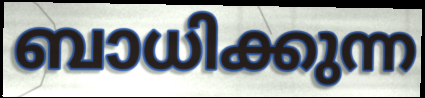
ബാധിക്കുന്ന